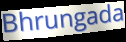
Bhrungada